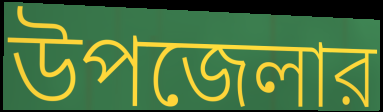
উপজেলার